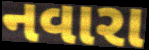
નવારા